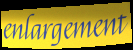
enlargement